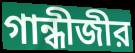
গান্ধীজীর